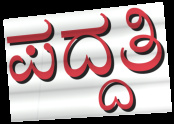
ಪದ್ದತಿ